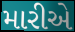
મારીએ